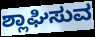
ಶ್ಲಾಘಿಸುವ